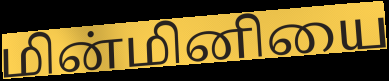
மின்மினியை